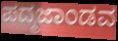
ಪದ್ಮಜಾಂಡವ